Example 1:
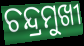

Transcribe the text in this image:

ଚନ୍ଦ୍ରମୁଖୀ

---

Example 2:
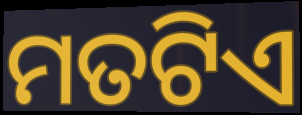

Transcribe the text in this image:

ମତଟିଏ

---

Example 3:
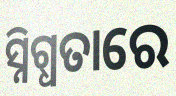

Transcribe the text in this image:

ସ୍ନିଗ୍ଧତାରେ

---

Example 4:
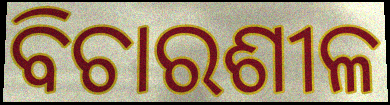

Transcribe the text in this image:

ବିଚାରଶୀଳ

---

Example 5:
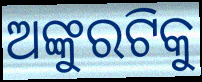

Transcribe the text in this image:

ଅଙ୍କୁରଟିକୁ